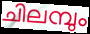
ചിലമ്പും